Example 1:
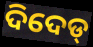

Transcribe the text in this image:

ଦିଦେଡ୍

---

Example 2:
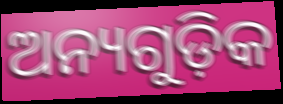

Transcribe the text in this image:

ଅନ୍ୟଗୁଡ଼ିକ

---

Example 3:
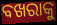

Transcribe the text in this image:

ବଖରାକୁ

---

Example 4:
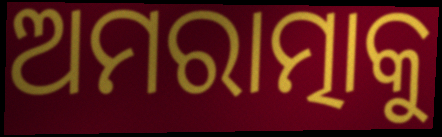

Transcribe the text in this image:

ଅମରାତ୍ମାକୁ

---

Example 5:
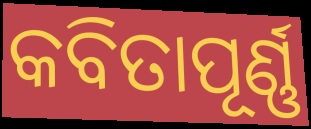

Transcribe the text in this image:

କବିତାପୂର୍ଣ୍ଣ